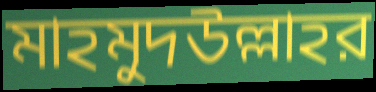
মাহমুদউল্লাহর